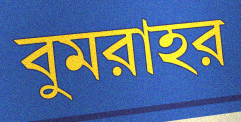
বুমরাহর